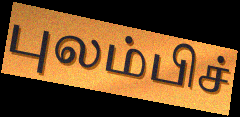
புலம்பிச்